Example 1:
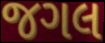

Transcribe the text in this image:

જગલ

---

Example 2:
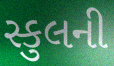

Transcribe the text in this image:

સ્કુલની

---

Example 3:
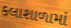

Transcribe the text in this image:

કલાશાળામાં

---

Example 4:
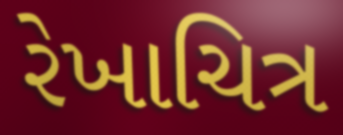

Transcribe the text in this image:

રેખાચિત્ર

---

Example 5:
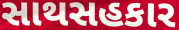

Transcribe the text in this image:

સાથસહકાર